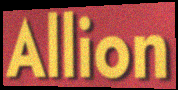
Allion